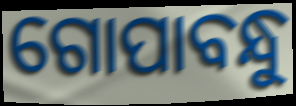
ଗୋପାବନ୍ଧୁ